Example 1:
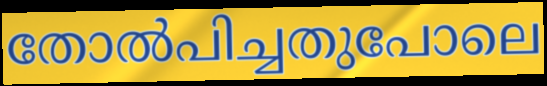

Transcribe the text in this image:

തോൽപിച്ചതുപോലെ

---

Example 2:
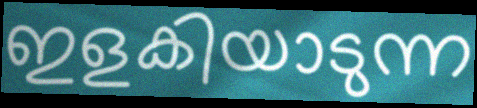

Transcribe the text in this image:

ഇളകിയാടുന്ന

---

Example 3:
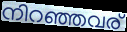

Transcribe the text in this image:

നിറഞ്ഞവര്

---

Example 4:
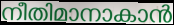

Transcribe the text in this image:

നീതിമാനാകാൻ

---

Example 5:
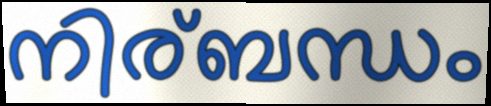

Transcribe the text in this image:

നിര്ബന്ധം